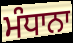
ਮੰਧਾਨਾ